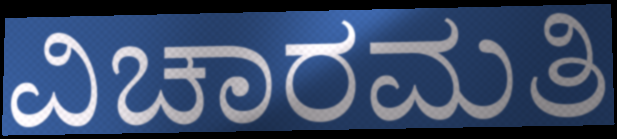
ವಿಚಾರಮತಿ